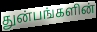
துன்பங்களின்